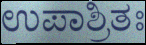
ಉಪಾಶ್ರಿತಃ